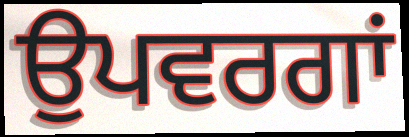
ਉਪਵਰਗਾਂ